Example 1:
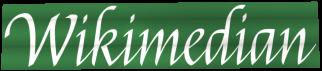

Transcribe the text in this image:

Wikimedian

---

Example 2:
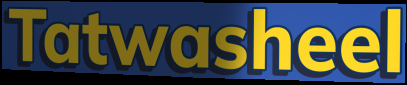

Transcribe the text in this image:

Tatwasheel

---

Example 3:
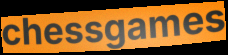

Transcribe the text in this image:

chessgames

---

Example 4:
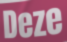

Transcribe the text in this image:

Deze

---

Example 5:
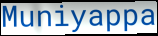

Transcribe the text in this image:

Muniyappa